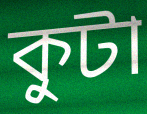
কুটা